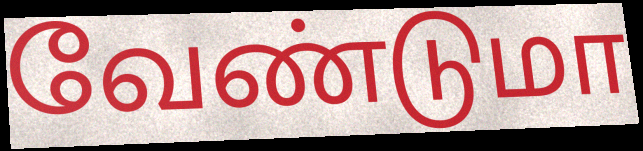
வேண்டுமா